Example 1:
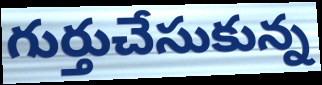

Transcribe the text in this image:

గుర్తుచేసుకున్న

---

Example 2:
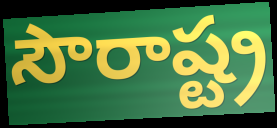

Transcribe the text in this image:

సౌరాష్ట్ర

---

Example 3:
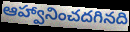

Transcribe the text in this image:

ఆహ్వానించదగినది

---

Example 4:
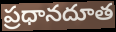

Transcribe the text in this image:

ప్రధానదూత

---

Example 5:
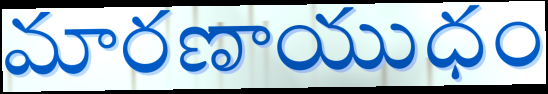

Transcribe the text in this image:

మారణాయుధం